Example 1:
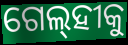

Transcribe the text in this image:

ଗେଲ୍‌ହୀକୁ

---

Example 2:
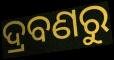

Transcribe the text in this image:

ଦ୍ରବଣରୁ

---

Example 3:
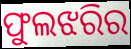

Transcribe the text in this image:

ଫୁଲଝରିର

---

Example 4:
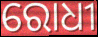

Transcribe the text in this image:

ରୋଧୀ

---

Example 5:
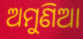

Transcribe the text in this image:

ଅମୁଣିଆ